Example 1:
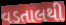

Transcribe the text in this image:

વડતાલથી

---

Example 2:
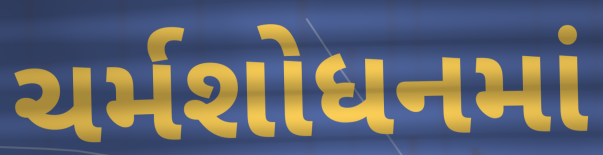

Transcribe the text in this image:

ચર્મશોધનમાં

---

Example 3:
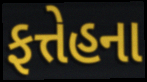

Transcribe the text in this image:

ફત્તેહના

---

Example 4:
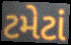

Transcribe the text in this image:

ટમેટાં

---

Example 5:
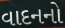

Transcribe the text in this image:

વાદનનો